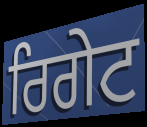
ਰਿਗੇਟ